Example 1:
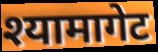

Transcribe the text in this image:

श्यामागेट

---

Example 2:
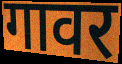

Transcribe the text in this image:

गावर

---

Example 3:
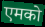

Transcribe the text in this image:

एमको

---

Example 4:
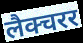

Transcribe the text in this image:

लैक्चरर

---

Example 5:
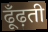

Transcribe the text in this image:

ढूँढ़ती